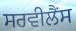
ਸਰਵੀਲੈਂਸ